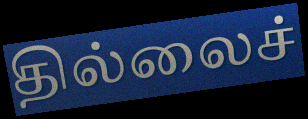
தில்லைச்